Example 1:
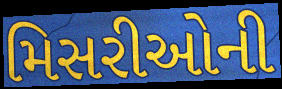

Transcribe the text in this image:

મિસરીઓની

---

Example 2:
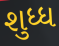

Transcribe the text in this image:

શુધ્ધ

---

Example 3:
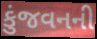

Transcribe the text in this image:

કુંજવનની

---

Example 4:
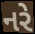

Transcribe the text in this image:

નરે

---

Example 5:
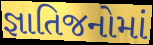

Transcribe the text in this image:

જ્ઞાતિજનોમાં